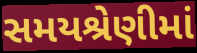
સમયશ્રેણીમાં